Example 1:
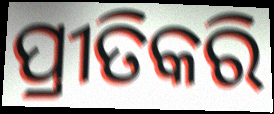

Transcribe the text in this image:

ପ୍ରୀତିକରି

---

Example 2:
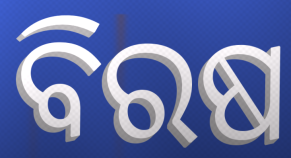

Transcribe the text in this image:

ବିରଷ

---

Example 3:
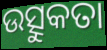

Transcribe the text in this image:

ଉତ୍ସୁକତା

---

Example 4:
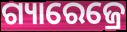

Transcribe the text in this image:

ଗ୍ୟାରେଜ୍ରେ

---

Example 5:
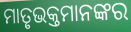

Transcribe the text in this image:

ମାତୃଭକ୍ତମାନଙ୍କର